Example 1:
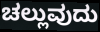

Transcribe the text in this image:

ಚಲ್ಲುವುದು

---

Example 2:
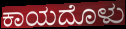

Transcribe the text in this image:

ಕಾಯದೊಳು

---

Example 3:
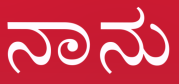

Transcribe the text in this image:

ನಾನು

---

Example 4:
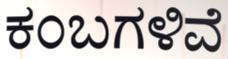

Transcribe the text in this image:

ಕಂಬಗಳಿವೆ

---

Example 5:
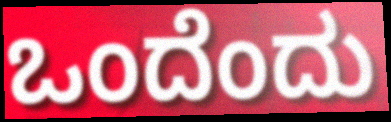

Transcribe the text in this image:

ಒಂದೆಂದು